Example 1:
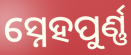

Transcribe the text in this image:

ସ୍ନେହପୁର୍ଣ୍ଣ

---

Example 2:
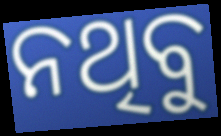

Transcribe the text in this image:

ନଥିବୁ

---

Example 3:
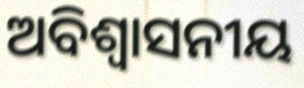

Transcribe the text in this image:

ଅବିଶ୍ୱାସନୀୟ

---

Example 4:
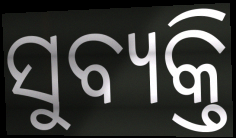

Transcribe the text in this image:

ସୁବ୍ୟକ୍ତି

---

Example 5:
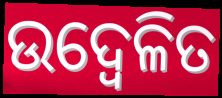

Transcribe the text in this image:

ଉଦ୍ବେଳିତ